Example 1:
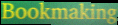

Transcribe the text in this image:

Bookmaking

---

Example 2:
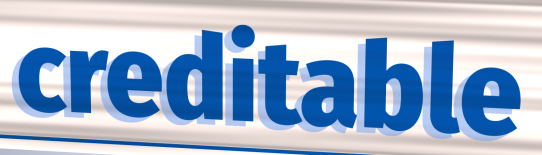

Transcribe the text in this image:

creditable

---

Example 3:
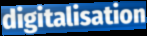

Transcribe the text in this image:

digitalisation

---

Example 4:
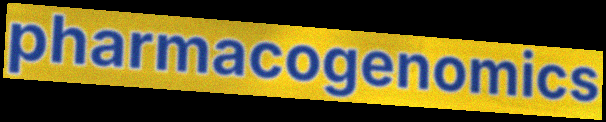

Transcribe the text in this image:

pharmacogenomics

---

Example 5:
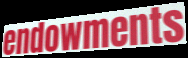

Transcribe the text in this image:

endowments